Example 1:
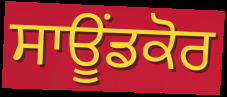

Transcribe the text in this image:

ਸਾਊਂਡਕੋਰ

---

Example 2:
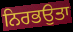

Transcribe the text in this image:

ਨਿਰਭਉਤਾ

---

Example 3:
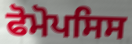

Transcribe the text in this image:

ਫੋਮੋਪਸਿਸ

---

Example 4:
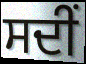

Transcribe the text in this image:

ਸਦੀਂ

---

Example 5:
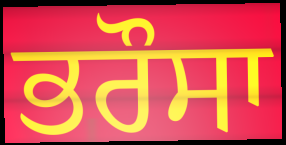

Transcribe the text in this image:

ਭਰੌਸਾ